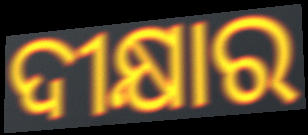
ଦୀକ୍ଷାର